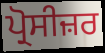
ਪ੍ਰੋਸੀਜ਼ਰ